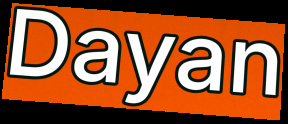
Dayan